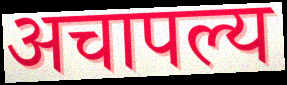
अचापल्य